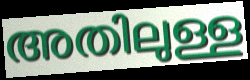
അതിലുള്ള